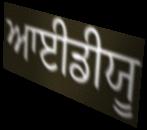
ਆਈਡੀਯੂ